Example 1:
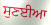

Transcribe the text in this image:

ਸੁਣਈਆ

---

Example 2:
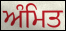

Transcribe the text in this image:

ਅੰਮਿਤ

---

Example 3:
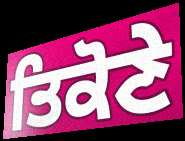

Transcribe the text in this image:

ਤਿਕੋਣੇ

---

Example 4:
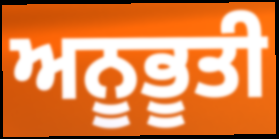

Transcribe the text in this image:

ਅਨੂਭੂਤੀ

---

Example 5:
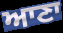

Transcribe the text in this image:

ਆਣਾ